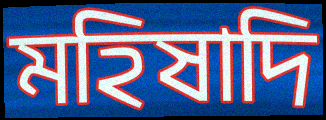
মহিষাদি